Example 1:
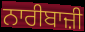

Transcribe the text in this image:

ਨਾਰੀਬਾਜ਼ੀ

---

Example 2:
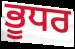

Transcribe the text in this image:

ਭੂਧਰ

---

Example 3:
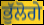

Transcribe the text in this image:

ਭੁੱਲੋਗੇ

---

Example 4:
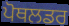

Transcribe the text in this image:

ਪੋਥਲਡਰ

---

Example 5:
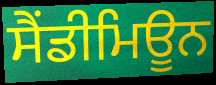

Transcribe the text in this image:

ਸੈਂਡੀਮਿਊਨ